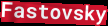
Fastovsky